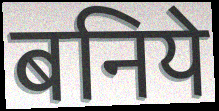
बनिये